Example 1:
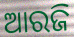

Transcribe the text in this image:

ଆରଜି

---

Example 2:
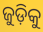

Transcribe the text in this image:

ଜୁଡ଼ିକୁ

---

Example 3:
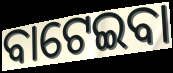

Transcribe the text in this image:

ବାଟେଇବା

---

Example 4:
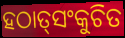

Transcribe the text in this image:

ହଠାତ୍‌ସଂକୁଚିତ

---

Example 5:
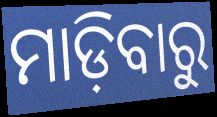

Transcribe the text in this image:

ମାଡ଼ିବାରୁ